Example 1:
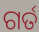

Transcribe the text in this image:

ଗର୍ତ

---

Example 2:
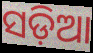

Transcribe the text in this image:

ସଡ଼ିଆ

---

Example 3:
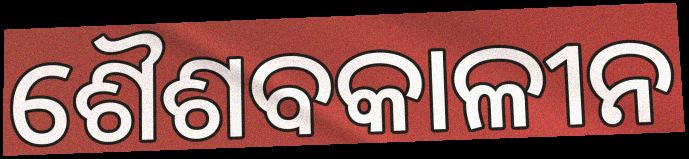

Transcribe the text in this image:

ଶୈଶବକାଳୀନ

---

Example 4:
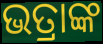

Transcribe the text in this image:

ଭତ୍ରାଙ୍କ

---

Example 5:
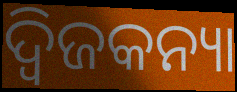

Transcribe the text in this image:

ଦ୍ୱିଜକନ୍ୟା